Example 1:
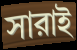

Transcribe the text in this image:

সারাই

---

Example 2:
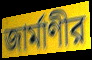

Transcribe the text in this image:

জার্মাণীর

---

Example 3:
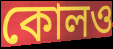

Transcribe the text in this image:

কোলও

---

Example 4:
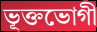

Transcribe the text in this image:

ভূক্তভোগী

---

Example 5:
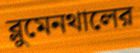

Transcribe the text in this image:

ব্লুমেনথালের